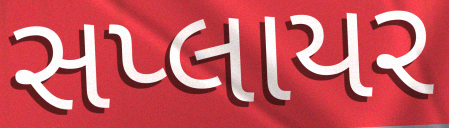
સપ્લાયર